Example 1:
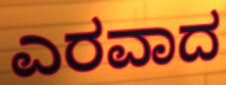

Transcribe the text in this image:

ಎರವಾದ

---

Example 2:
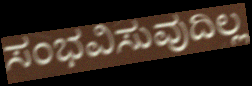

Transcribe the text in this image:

ಸಂಭವಿಸುವುದಿಲ್ಲ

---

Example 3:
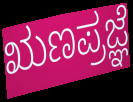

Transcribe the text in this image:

ಋಣಪ್ರಜ್ಞೆ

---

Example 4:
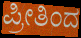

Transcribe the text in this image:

ಪ್ರೀತಿಂದ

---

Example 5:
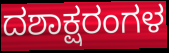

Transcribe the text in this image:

ದಶಾಕ್ಷರಂಗಳ